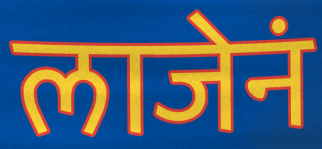
लाजेनं